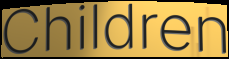
Children